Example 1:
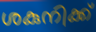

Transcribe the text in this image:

ശകുനിക്ക്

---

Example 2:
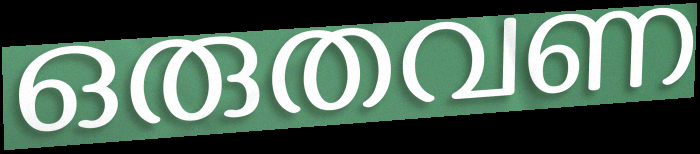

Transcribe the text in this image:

ഒരുതവണ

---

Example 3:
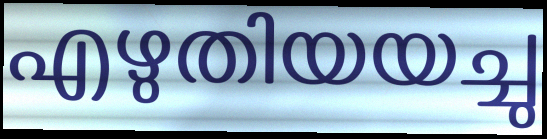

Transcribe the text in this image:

എഴുതിയയച്ചു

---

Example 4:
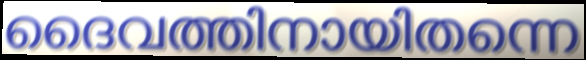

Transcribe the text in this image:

ദൈവത്തിനായിതന്നെ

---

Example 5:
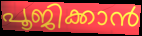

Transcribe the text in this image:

പൂജിക്കാൻ